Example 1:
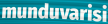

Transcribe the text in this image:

munduvarisi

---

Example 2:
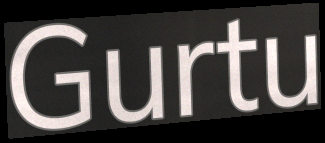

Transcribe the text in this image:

Gurtu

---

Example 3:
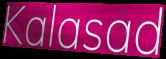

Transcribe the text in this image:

Kalasad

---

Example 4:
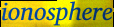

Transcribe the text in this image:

ionosphere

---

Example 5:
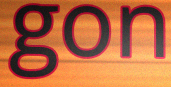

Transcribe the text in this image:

gon